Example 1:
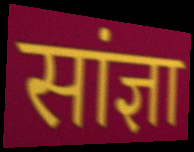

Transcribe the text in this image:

सांज्ञा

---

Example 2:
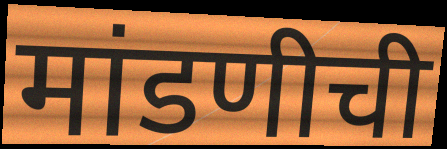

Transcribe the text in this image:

मांडणीची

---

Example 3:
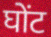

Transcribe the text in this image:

घोंट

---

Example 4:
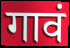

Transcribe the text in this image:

गावं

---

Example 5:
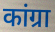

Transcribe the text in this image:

कांग्रा